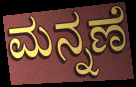
ಮನ್ನಣೆ